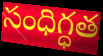
సంధిగ్ధత